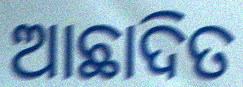
ଆଛାଦିତ